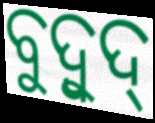
ବୁଦ୍ବୁଦ୍